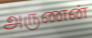
அருணன்